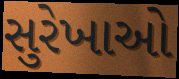
સુરેખાઓ